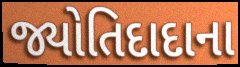
જ્યોતિદાદાના